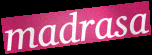
madrasa